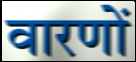
वारणों